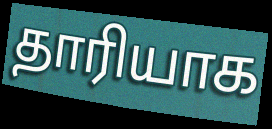
தாரியாக